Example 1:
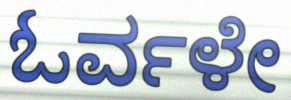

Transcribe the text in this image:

ಓರ್ವಳೇ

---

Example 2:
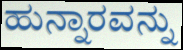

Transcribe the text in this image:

ಹುನ್ನಾರವನ್ನು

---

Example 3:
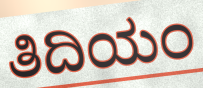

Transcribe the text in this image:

ತಿದಿಯಂ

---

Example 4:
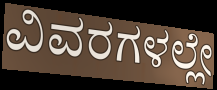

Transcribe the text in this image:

ವಿವರಗಳಲ್ಲೇ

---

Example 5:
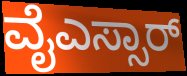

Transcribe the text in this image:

ವೈಎಸ್ಸಾರ್